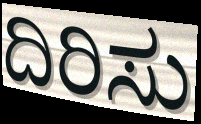
ದಿರಿಸು